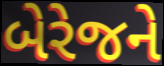
બેરેજને